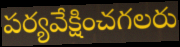
పర్యవేక్షించగలరు